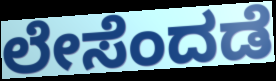
ಲೇಸೆಂದಡೆ